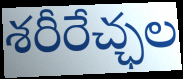
శరీరేచ్ఛల